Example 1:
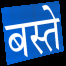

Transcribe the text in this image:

बस्ते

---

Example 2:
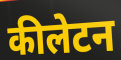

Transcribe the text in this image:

कीलेटन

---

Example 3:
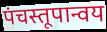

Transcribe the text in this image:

पंचस्तूपान्वय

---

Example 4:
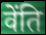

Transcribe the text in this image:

वेंति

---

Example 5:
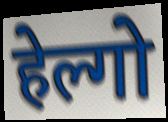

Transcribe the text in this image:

हेल्गो